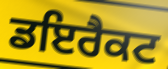
ਡਇਰੈਕਟ